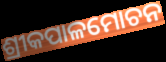
ଶ୍ରୀକପାଳମୋଚନ